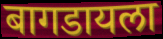
बागडायला